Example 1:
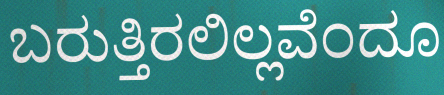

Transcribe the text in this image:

ಬರುತ್ತಿರಲಿಲ್ಲವೆಂದೂ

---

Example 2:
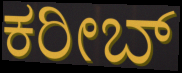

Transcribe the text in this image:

ಕರೀಬ್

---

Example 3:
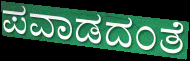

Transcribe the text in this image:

ಪವಾಡದಂತೆ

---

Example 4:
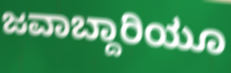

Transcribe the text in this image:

ಜವಾಬ್ದಾರಿಯೂ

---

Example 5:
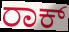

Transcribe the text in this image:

ರಾಕ್